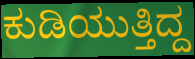
ಕುಡಿಯುತ್ತಿದ್ದ